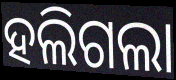
ହଲିଗଲା